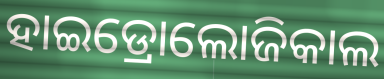
ହାଇଡ୍ରୋଲୋଜିକାଲ